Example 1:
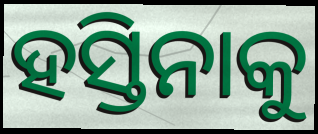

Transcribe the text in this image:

ହସ୍ତିନାକୁ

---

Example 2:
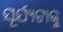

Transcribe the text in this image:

ସୂର୍ଯ୍ୟଟାକୁ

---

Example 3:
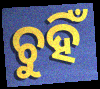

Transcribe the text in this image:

ଚୁହିଁ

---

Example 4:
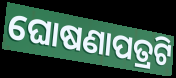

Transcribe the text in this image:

ଘୋଷଣାପତ୍ରଟି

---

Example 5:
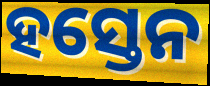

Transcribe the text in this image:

ହସ୍ତେନ